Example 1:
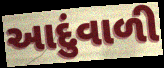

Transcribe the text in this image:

આદુંવાળી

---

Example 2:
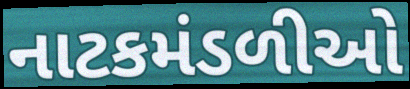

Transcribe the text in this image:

નાટકમંડળીઓ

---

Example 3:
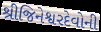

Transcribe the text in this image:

શ્રીજિનેશ્વરદેવોની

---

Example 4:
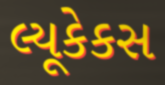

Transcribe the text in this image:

લ્યૂકેકસ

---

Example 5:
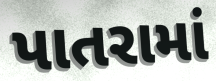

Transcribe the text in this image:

પાતરામાં